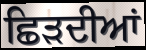
ਛਿੜਦੀਆਂ